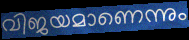
വിജയമാണെന്നും